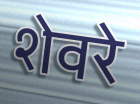
शेवरे